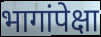
भागांपेक्षा